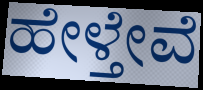
ಹೇಳ್ತೇವೆ